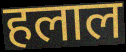
हलाल